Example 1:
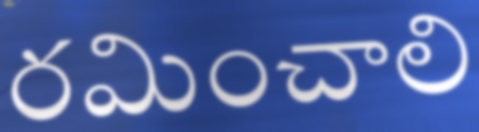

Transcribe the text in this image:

రమించాలి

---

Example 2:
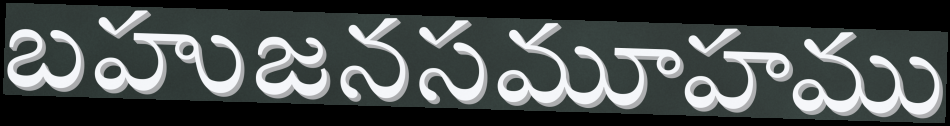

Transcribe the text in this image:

బహుజనసమూహము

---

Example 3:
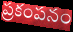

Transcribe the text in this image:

ప్రకంపనం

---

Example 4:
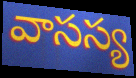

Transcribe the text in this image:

వాసస్య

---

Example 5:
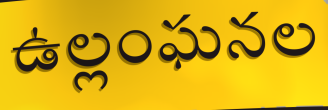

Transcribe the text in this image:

ఉల్లంఘనల